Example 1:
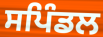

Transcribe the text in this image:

ਸਪਿੰਡਲ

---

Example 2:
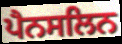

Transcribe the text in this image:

ਪੈਨਸਲਿਨ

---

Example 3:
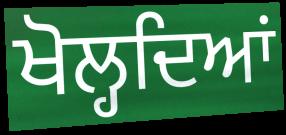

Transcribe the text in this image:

ਖੋਲ੍ਹਦਿਆਂ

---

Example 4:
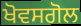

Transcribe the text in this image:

ਖੋਵਸਗੋਲ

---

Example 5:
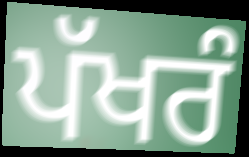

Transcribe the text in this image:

ਪੱਖਰੰ